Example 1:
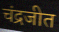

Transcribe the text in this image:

चंद्रजीत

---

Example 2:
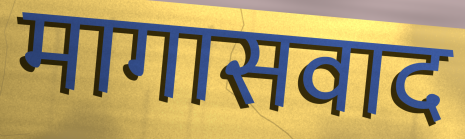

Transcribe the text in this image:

मागासवाद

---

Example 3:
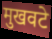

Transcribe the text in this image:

मुखवटे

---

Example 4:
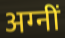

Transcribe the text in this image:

अग्नीं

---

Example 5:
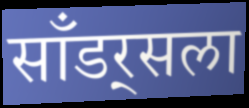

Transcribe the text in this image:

साँडर्सला